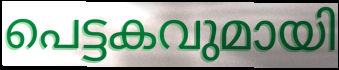
പെട്ടകവുമായി